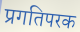
प्रगतिपरक